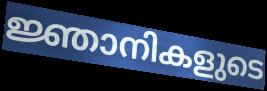
ജ്ഞാനികളുടെ